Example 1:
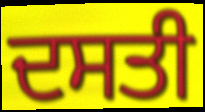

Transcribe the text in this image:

ਦਸਤੀ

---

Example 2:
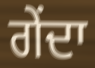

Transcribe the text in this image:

ਗੇਂਦਾ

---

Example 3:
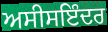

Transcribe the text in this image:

ਅਸੀਸਇੰਦਰ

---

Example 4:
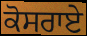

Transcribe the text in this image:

ਕੋਸਰਾਏ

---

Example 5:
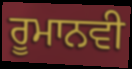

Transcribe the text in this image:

ਰੂਮਾਨਵੀ